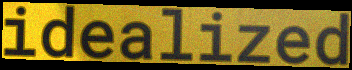
idealized